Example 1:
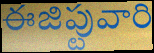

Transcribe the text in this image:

ఈజిప్టువారి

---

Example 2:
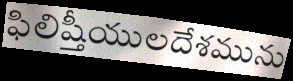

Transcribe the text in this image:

ఫిలిష్తీయులదేశమును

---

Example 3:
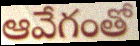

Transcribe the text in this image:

ఆవేగంతో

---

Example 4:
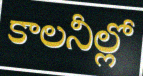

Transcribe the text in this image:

కాలనీల్లో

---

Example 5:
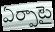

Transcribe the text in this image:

ఏర్పాటై